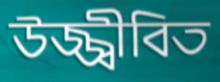
উজ্জ্বীবিত